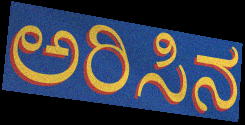
ಅರಿಸಿನ